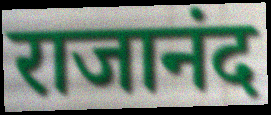
राजानंद